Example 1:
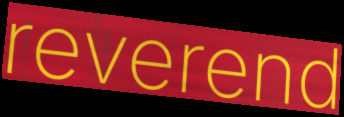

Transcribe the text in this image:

reverend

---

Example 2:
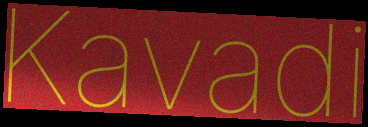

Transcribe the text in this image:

Kavadi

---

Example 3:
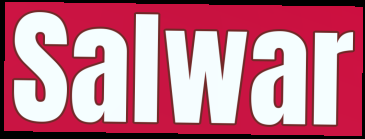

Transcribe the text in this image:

Salwar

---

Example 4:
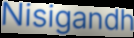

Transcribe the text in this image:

Nisigandh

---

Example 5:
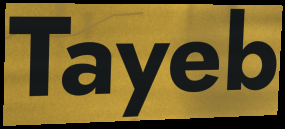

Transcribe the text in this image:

Tayeb